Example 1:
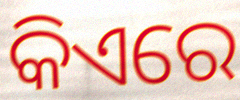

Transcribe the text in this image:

କିଏରେ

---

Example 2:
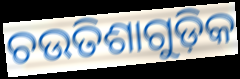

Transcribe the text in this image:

ଚଉତିଶାଗୁଡ଼ିକ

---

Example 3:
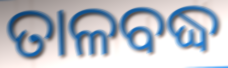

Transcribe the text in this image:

ତାଳବଦ୍ଧ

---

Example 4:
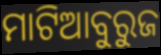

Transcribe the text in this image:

ମାଟିଆବୁରୁଜ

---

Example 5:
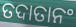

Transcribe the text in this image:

ତଦାତାନଂ